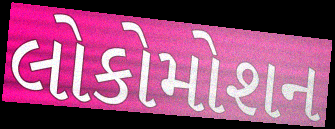
લોકોમોશન